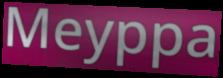
Meyppa